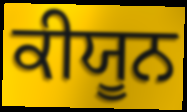
ਕੀਯੂਨ